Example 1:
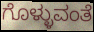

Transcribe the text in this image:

ಗೊಳ್ಳುವಂತೆ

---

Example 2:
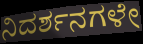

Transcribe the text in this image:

ನಿದರ್ಶನಗಳೇ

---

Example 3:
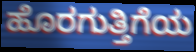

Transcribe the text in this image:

ಹೊರಗುತ್ತಿಗೆಯ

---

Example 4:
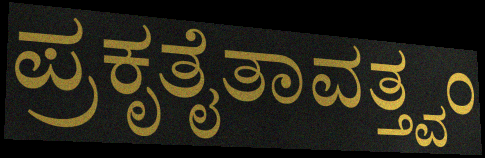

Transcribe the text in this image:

ಪ್ರಕೃತೈತಾವತ್ತ್ವಂ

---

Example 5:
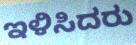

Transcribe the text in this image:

ಇಳಿಸಿದರು